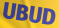
UBUD